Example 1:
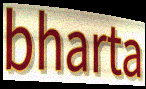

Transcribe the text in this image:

bharta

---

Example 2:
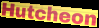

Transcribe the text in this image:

Hutcheon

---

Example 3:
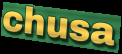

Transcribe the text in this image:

chusa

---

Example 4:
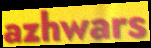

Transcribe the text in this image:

azhwars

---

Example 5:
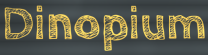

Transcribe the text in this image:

Dinopium